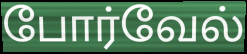
போர்வேல்